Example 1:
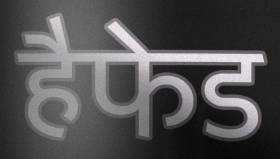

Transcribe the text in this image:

हैफेड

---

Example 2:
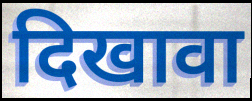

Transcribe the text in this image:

दिखावा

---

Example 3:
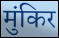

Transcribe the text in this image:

मुंकिर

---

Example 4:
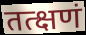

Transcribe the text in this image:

तत्क्षणं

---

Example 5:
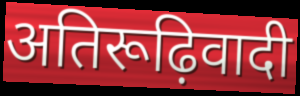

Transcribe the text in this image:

अतिरूढ़िवादी